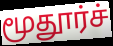
மூதூர்ச்